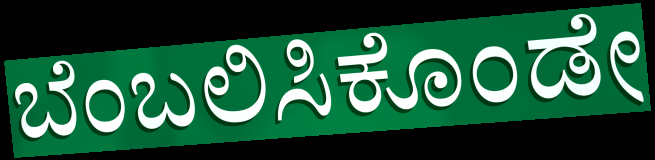
ಬೆಂಬಲಿಸಿಕೊಂಡೇ